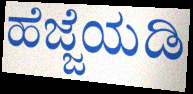
ಹೆಜ್ಜೆಯಡಿ